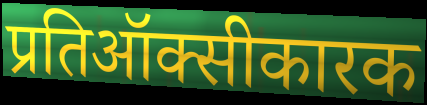
प्रतिऑक्सीकारक